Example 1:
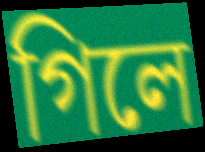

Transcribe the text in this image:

গিলে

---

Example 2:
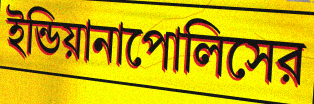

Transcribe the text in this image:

ইন্ডিয়ানাপোলিসের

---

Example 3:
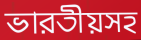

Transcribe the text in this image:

ভারতীয়সহ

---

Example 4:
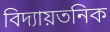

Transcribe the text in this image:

বিদ্যায়তনিক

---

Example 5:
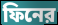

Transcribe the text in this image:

ফিনের